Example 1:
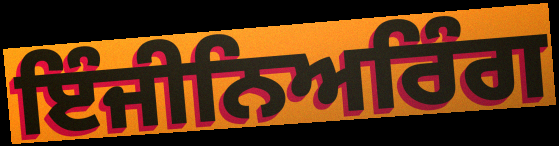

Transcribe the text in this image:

ਇੰਜੀਨਿਅਰਿੰਗ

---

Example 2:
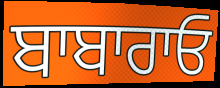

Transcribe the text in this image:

ਬਾਬਾਰਾਓ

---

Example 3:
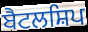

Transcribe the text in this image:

ਬੈਟਲਸ਼ਿਪ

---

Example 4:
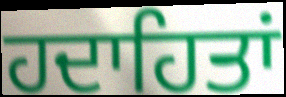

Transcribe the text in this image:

ਹਦਾਹਿਤਾਂ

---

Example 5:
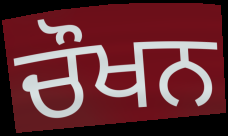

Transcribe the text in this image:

ਚੌਖਨ